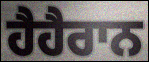
ਹੈਹੈਰਾਨ